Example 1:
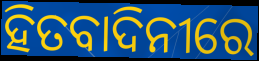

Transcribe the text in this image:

ହିତବାଦିନୀରେ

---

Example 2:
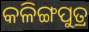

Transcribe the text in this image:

କଳିଙ୍ଗପୁତ୍ର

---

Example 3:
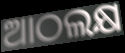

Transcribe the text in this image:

ଆଠଲକ୍ଷ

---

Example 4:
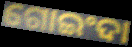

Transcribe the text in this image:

ଗୋଇଂଦା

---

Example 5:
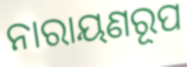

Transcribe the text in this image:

ନାରାୟଣରୂପ